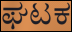
ಘಟಕ